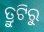
ତ୍ରୁଟିରୁ